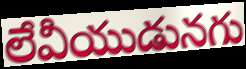
లేవీయుడునగు